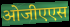
ओजीएएस